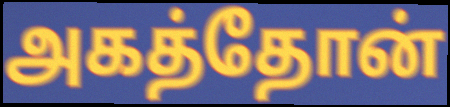
அகத்தோன்